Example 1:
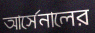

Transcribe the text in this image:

আর্সেনালের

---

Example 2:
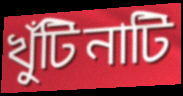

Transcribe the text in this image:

খুঁটিনাটি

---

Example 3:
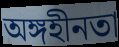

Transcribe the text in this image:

অঙ্গহীনতা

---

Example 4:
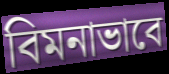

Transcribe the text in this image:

বিমনাভাবে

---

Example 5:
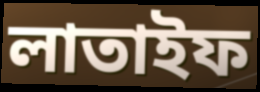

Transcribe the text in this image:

লাতাইফ